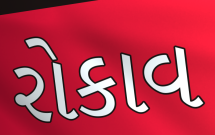
રોકાવ